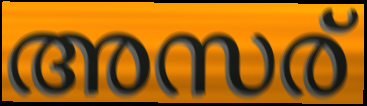
അസര്